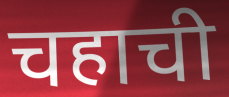
चहाची